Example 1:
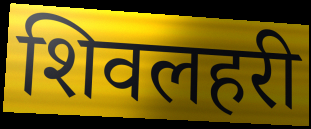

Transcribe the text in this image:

शिवलहरी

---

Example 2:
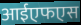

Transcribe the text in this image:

आईएफएस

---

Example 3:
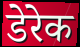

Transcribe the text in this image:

डेरेक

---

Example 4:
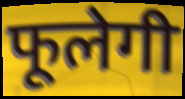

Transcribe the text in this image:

फूलेगी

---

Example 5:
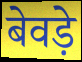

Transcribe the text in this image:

बेवड़े